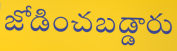
జోడించబడ్డారు